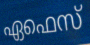
ഏഫെസ്